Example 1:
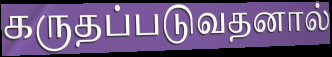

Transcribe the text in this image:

கருதப்படுவதனால்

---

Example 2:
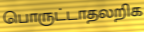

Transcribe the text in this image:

பொருட்டாதலறிக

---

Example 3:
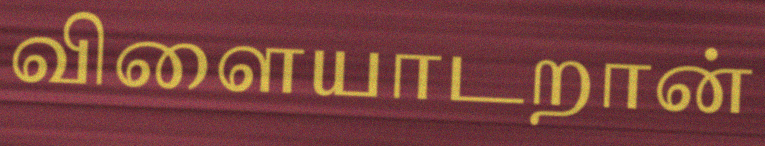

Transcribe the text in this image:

விளையாடறான்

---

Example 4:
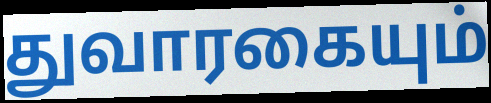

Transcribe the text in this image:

துவாரகையும்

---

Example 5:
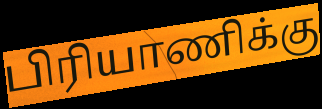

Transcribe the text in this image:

பிரியாணிக்கு